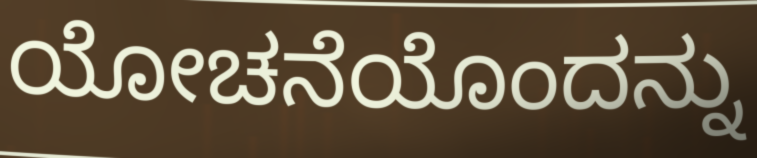
ಯೋಚನೆಯೊಂದನ್ನು